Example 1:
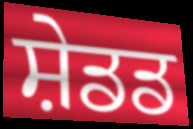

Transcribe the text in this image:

ਸ਼ੇਡਡ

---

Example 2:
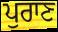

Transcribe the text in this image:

ਪੁਰਾਣ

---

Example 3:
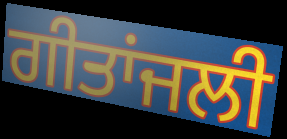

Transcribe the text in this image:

ਗੀਤਾਂਜਲੀ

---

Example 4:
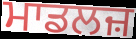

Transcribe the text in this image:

ਮਾਡਲਜ਼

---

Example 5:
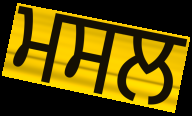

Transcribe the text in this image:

ਮਸਲ